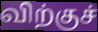
விற்குச்